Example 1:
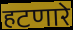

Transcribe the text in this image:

हटणारे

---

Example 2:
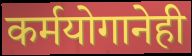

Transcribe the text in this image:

कर्मयोगानेही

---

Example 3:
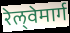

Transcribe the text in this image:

रेल्वेमार्ग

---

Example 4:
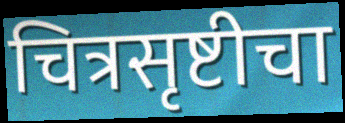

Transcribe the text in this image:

चित्रसृष्टीचा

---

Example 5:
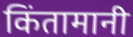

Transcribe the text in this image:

किंतामानी